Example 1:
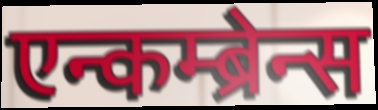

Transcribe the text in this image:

एन्कम्ब्रेन्स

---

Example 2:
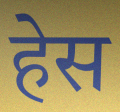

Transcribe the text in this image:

हेस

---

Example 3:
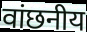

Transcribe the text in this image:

वांछनीय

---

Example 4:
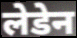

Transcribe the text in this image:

लेडेन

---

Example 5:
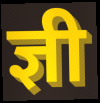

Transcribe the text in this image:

ज्ञी